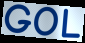
GOL